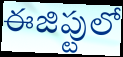
ఈజిప్టులో